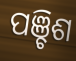
ପଞ୍ଚିଶ